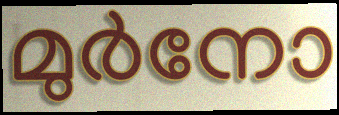
മുർനോ